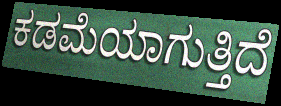
ಕಡಮೆಯಾಗುತ್ತಿದೆ